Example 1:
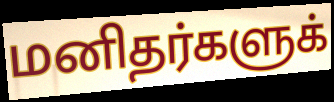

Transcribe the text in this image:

மனிதர்களுக்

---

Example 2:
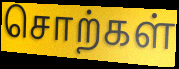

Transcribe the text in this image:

சொற்கள்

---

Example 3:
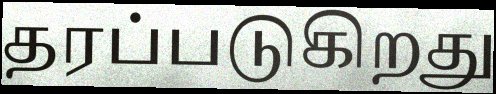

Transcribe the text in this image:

தரப்படுகிறது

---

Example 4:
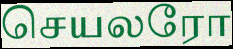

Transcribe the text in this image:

செயலரோ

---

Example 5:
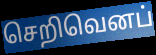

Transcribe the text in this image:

செறிவெனப்